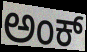
ಅಂಕ್